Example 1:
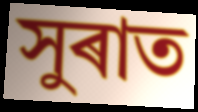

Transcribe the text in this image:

সুৰাত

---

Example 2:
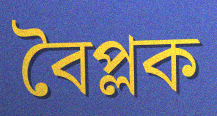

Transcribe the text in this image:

বৈপ্লক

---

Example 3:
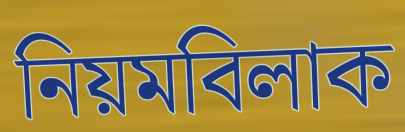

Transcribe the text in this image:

নিয়মবিলাক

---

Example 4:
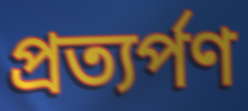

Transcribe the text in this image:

প্ৰত্যৰ্পণ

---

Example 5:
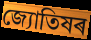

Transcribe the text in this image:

জ্যোতিষৰ